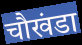
चौखंडा